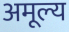
अमूल्‍य